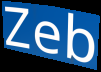
Zeb